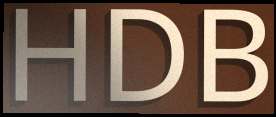
HDB